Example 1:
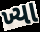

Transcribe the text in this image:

ખ્યા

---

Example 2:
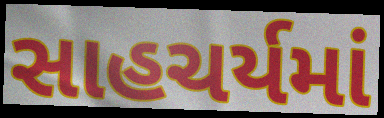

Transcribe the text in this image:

સાહચર્યમાં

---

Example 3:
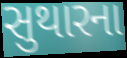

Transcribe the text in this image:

સુથારના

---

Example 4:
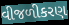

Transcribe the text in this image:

વીજળીકરણ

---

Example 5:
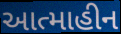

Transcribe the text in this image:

આત્માહીન